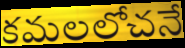
కమలలోచనే